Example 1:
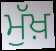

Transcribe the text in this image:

ਮੁੱਖ਼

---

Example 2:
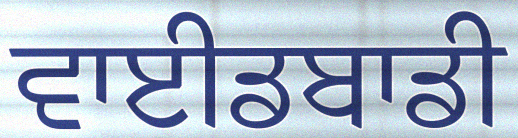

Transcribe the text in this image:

ਵਾਈਡਬਾਡੀ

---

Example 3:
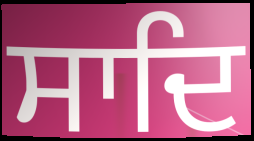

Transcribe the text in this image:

ਸਾਦਿ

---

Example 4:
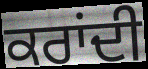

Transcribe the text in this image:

ਕਰਾਂਦੀ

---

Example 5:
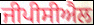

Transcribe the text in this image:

ਜੀਪੀਸੀਐਲ